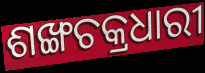
ଶଙ୍ଖଚକ୍ରଧାରୀ